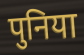
पुनिया